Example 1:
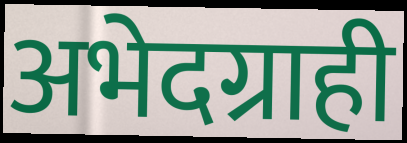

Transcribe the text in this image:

अभेदग्राही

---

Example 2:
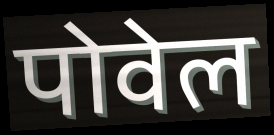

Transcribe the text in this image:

पोवेल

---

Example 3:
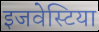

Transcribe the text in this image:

इजवेस्टिया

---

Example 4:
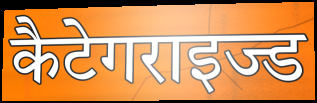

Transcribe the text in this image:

कैटेगराइज्ड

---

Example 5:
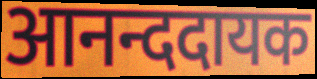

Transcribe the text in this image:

आनन्ददायक